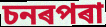
চনৰপৰা